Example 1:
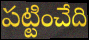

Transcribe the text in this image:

పట్టించేది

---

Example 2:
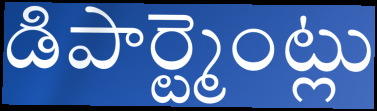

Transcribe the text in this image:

డిపార్ట్మెంట్లు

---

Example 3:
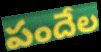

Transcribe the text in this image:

పందేల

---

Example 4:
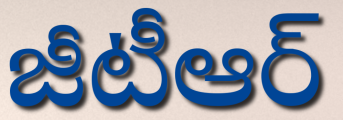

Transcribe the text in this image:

జీటీఆర్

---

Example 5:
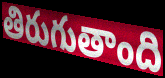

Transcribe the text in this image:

తిరుగుతాంది